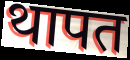
थापत